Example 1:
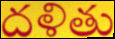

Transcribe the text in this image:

దళితు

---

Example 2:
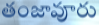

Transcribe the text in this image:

తంజావూరు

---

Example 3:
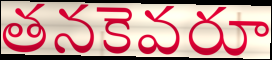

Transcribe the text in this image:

తనకెవరూ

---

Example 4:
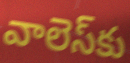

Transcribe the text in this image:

వాలెస్‌కు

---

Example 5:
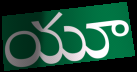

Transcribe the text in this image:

యూ